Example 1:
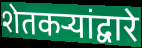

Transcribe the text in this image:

शेतकऱ्यांद्वारे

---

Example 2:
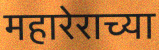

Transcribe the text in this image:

महारेराच्या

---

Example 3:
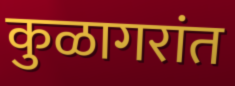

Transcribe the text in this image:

कुळागरांत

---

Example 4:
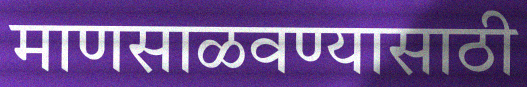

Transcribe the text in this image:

माणसाळवण्यासाठी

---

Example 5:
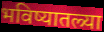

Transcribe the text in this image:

भविष्यातल्या